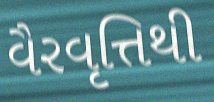
વૈરવૃત્તિથી